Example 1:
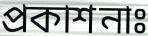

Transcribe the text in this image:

প্রকাশনাঃ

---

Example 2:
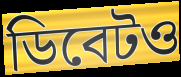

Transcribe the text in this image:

ডিবেটও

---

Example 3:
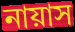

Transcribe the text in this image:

নায়াস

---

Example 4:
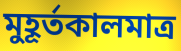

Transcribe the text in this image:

মুহূর্তকালমাত্র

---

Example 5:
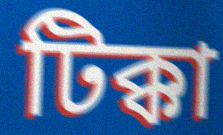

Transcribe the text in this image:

টিক্কা